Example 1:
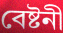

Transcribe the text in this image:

বেষ্টনী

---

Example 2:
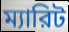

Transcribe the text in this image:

ম্যারিট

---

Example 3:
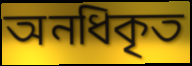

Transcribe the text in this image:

অনধিকৃত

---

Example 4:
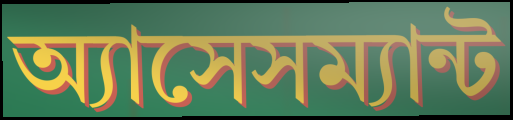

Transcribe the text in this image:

অ্যাসেসম্যান্ট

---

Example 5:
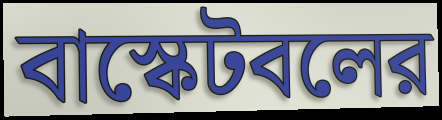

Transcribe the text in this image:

বাস্কেটবলের